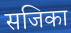
सजिका